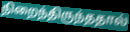
நிறைந்திருந்ததால்